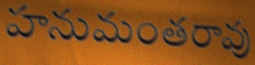
హనుమంతరావు